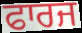
ਫਾਰਜ